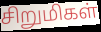
சிறுமிகள்